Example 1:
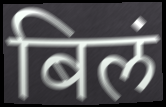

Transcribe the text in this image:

बिलं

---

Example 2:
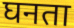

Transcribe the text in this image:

घनता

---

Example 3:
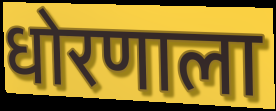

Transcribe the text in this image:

धोरणाला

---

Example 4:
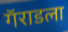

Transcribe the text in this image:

गॅराडला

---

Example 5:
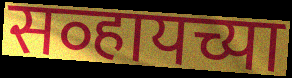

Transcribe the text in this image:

सव्हायच्या